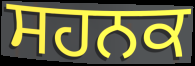
ਸਹਨਕ